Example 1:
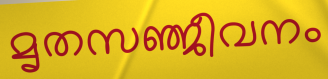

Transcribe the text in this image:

മൃതസഞ്ജീവനം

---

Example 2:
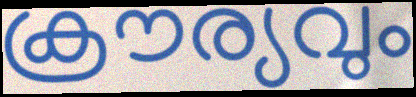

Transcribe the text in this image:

ക്രൗര്യവും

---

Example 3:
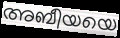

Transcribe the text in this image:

അബീയയെ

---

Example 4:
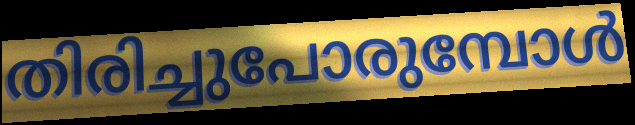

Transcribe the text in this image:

തിരിച്ചുപോരുമ്പോൾ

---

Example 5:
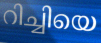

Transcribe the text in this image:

റിച്ചിയെ